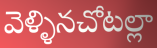
వెళ్ళినచోటల్లా